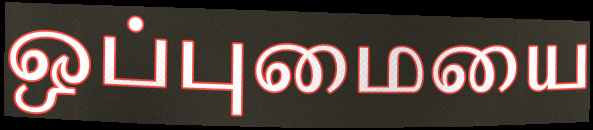
ஒப்புமையை